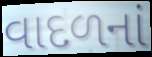
વાદળનાં